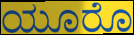
ಯೂರೊ